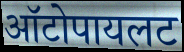
ऑटोपायलट